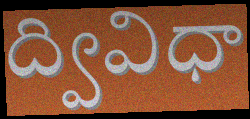
ద్వివిధా